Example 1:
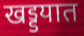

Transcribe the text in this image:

खड्डयात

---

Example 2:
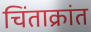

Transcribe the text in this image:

चिंताक्रांत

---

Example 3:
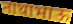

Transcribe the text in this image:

नाथाभाऊ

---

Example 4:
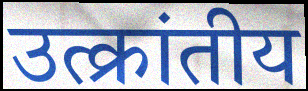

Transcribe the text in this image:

उत्क्रांतीय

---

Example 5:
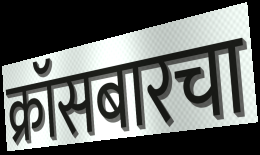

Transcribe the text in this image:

क्रॉसबारचा